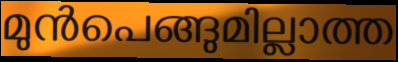
മുൻപെങ്ങുമില്ലാത്ത